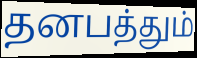
தனபத்தும்